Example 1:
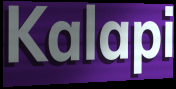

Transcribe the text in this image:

Kalapi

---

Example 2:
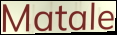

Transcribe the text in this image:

Matale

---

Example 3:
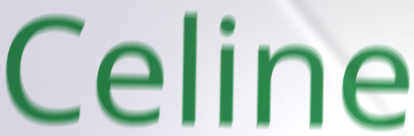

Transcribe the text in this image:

Celine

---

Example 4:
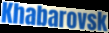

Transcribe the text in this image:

Khabarovsk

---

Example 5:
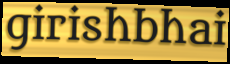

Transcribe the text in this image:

girishbhai